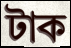
টাক